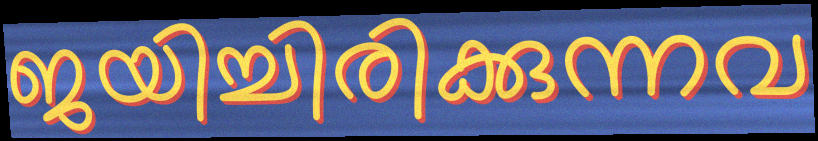
ജയിച്ചിരിക്കുന്നവ